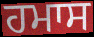
ਹਮਾਸ